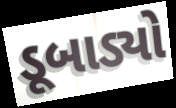
ડૂબાડ્યો